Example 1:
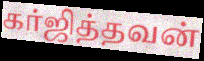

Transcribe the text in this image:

கர்ஜித்தவன்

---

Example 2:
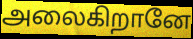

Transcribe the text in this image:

அலைகிறானே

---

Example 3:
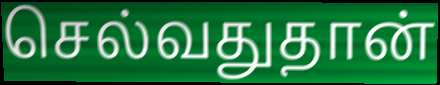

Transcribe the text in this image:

செல்வதுதான்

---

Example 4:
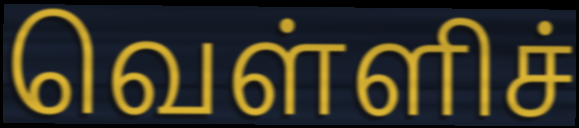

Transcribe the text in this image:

வெள்ளிச்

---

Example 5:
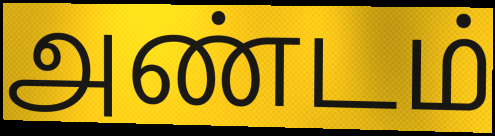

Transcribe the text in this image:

அண்டம்